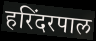
हरिंदरपाल